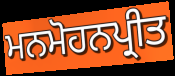
ਮਨਮੋਹਨਪ੍ਰੀਤ